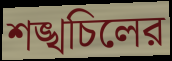
শঙ্খচিলের